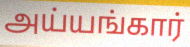
அய்யங்கார்